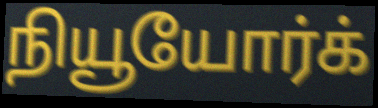
நியூயோர்க்